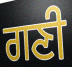
ਗਣੀ